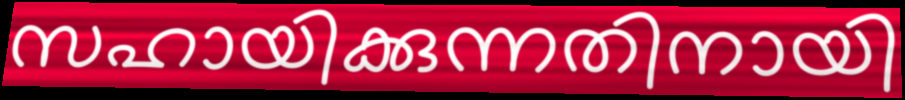
സഹായിക്കുന്നതിനായി